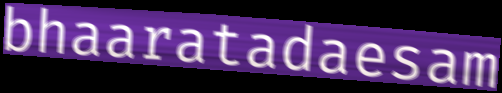
bhaaratadaesam